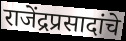
राजेंद्रप्रसादांचे